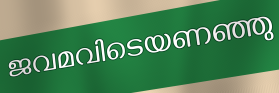
ജവമവിടെയണഞ്ഞു